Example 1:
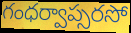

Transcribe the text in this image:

గంధర్వాప్సరసో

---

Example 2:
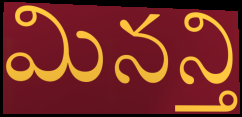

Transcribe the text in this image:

మినన్తి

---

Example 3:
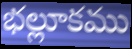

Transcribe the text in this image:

భల్లూకము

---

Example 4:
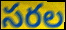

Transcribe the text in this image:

సరల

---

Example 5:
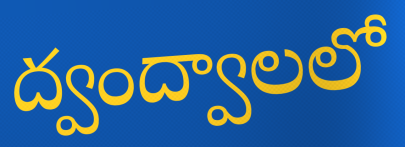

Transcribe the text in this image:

ద్వంద్వాలలో